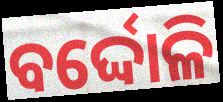
ବର୍ଦ୍ଦୋଳି